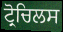
ਟ੍ਰੋਚਿਲਸ